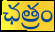
ఛత్రం